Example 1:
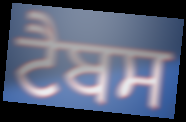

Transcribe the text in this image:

ਟੈਬਸ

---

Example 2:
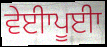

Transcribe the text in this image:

ਵੇਈਾਪੂਈਾ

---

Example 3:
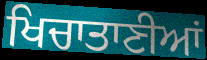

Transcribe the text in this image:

ਖਿਚਾਤਾਣੀਆਂ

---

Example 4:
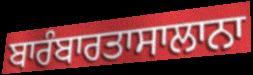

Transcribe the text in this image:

ਬਾਰੰਬਾਰਤਾਸਾਲਾਨਾ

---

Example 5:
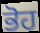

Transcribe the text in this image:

ਭੋਹ